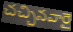
చచ్చినవారై